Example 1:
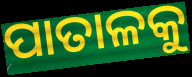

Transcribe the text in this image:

ପାତାଳକୁ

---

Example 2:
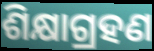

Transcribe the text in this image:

ଶିକ୍ଷାଗ୍ରହଣ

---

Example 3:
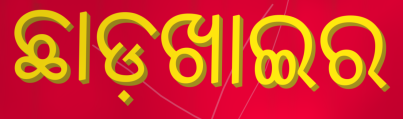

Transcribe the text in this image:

ଛାଡ଼ଖାଇର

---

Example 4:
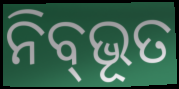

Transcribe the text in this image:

ନିବ୍‌ଭୂତ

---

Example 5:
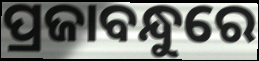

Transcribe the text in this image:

ପ୍ରଜାବନ୍ଧୁରେ